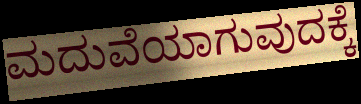
ಮದುವೆಯಾಗುವುದಕ್ಕೆ